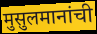
मुसुलमानांची